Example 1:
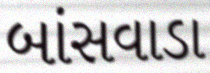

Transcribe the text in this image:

બાંસવાડા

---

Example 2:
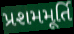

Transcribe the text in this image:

પ્રશમમૂર્તિ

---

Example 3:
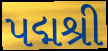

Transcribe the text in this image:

પદ્મશ્રી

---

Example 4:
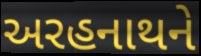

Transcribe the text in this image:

અરહનાથને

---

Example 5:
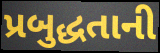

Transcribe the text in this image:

પ્રબુદ્ધતાની